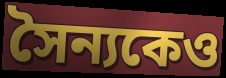
সৈন্যকেও